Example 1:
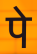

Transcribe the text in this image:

पे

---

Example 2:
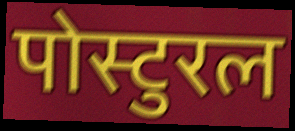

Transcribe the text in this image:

पोस्टुरल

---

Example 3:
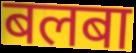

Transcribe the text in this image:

बलबा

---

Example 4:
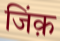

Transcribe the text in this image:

जिंक़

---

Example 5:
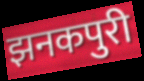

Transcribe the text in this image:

झनकपुरी